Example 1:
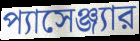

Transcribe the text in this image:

প্যাসেঞ্জ্যার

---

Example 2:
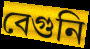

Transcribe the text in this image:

বেগুনি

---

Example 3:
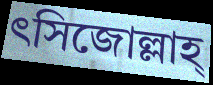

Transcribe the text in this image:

ৎসিজোল্লাহ্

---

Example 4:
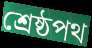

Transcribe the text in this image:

শ্রেষ্ঠপথ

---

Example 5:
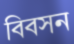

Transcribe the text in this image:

বিবসন